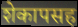
शेकापसह